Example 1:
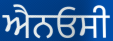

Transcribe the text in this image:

ਐਨਓਸੀ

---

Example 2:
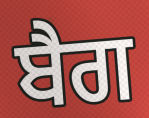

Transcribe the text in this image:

ਬੈਗ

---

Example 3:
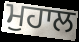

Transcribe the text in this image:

ਮੁਹਾਲ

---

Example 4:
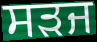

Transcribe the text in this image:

ਸੜਜ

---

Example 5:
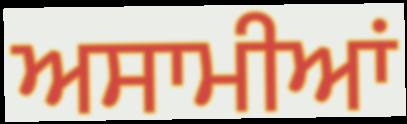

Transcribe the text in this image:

ਅਸਾਮੀਆਂ